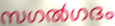
സഗൽഗദം